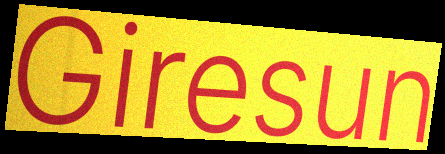
Giresun